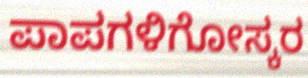
ಪಾಪಗಳಿಗೋಸ್ಕರ